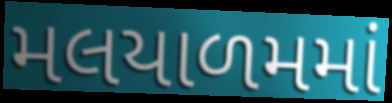
મલયાળમમાં